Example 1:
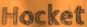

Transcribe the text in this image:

Hocket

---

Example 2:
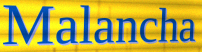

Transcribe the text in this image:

Malancha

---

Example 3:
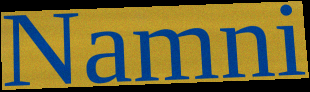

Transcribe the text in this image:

Namni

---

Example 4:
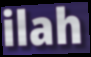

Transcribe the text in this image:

ilah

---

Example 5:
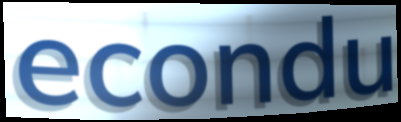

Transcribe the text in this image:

econdu